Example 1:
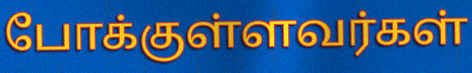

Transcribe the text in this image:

போக்குள்ளவர்கள்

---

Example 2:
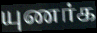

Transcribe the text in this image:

யுணர்க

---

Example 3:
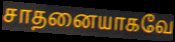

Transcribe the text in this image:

சாதனையாகவே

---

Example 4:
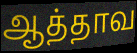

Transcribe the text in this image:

ஆத்தாவ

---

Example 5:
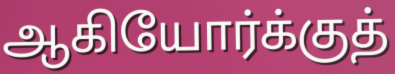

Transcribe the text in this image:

ஆகியோர்க்குத்